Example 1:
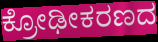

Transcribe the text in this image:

ಕ್ರೋಢೀಕರಣದ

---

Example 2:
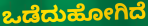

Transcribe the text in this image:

ಒಡೆದುಹೋಗಿದೆ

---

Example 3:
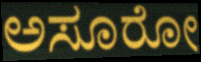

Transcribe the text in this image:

ಅಸೂರೋ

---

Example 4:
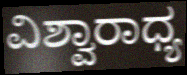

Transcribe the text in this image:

ವಿಶ್ವಾರಾಧ್ಯ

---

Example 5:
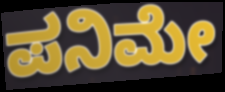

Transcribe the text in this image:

ಪನಿಮೇ